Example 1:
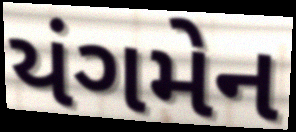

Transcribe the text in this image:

યંગમેન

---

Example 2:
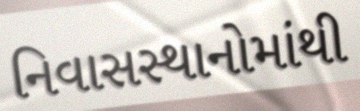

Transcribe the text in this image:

નિવાસસ્થાનોમાંથી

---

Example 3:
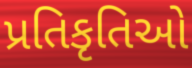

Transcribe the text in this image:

પ્રતિકૃતિઓ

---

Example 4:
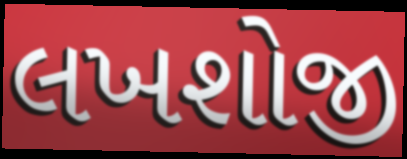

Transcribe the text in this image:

લખશોજી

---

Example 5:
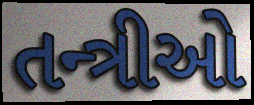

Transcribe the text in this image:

તન્ત્રીઓ